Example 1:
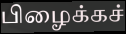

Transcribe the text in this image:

பிழைக்கச்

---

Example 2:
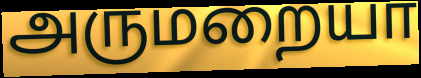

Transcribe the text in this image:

அருமறையா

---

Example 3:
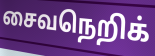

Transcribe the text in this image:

சைவநெறிக்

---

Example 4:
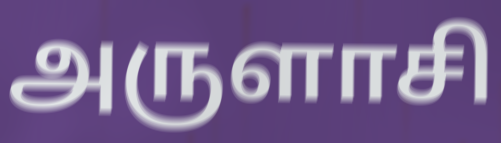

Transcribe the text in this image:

அருளாசி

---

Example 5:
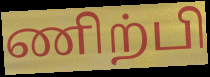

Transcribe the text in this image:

ணிற்பி